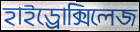
হাইড্রোক্সিলেজ